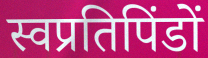
स्वप्रतिपिंडों